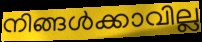
നിങ്ങൾക്കാവില്ല